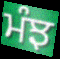
ਮੰਝ